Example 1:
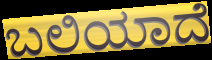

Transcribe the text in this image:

ಬಲಿಯಾದೆ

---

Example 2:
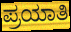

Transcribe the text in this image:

ಪ್ರಯಾತಿ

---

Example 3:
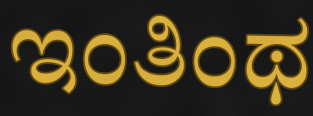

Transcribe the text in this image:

ಇಂತಿಂಥ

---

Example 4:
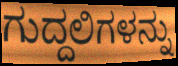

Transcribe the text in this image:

ಗುದ್ದಲಿಗಳನ್ನು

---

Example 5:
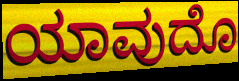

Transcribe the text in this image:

ಯಾವುದೊ